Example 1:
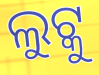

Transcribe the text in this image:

ଲୁଟ୍କୁ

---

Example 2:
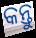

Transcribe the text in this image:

କନ୍ତୁ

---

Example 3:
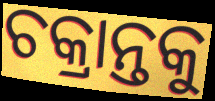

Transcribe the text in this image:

ଚକ୍ରାନ୍ତକୁ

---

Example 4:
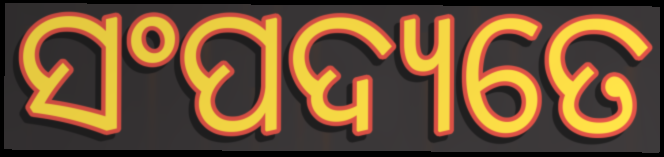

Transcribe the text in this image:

ସଂପଦ୍ୟତେ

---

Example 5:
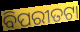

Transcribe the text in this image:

ବିପରୀତଟା